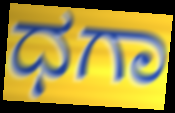
ಧಗಾ